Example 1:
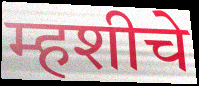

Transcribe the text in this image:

म्हशीचे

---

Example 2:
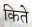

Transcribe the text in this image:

किते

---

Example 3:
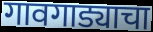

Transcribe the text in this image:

गावगाड्याचा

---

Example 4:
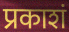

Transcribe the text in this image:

प्रकाशं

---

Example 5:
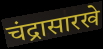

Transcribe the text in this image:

चंद्रासारखे